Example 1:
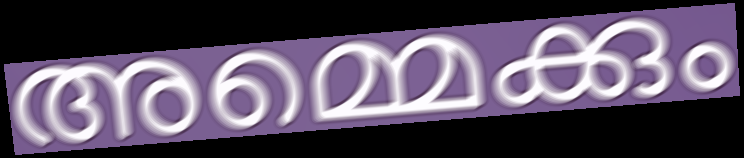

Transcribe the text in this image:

അമ്മെക്കും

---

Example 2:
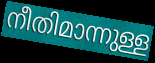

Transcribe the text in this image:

നീതിമാന്നുള്ള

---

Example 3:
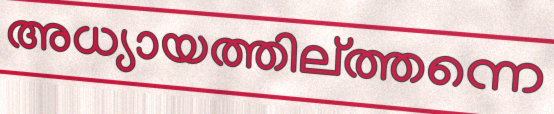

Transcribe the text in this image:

അധ്യായത്തില്ത്തന്നെ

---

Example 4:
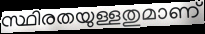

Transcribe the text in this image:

സ്ഥിരതയുള്ളതുമാണ്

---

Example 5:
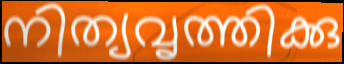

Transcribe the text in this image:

നിത്യവൃത്തിക്കു